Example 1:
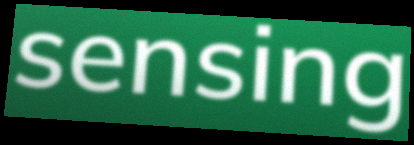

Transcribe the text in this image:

sensing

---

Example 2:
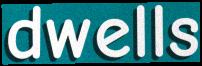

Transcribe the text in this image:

dwells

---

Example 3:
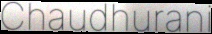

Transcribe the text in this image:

Chaudhurani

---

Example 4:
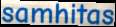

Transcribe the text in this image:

samhitas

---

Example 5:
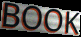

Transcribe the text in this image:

BOOK